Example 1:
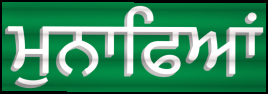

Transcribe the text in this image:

ਮੁਨਾਫਿਆਂ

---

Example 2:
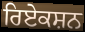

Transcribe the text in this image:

ਰਿਏਕਸ਼ਨ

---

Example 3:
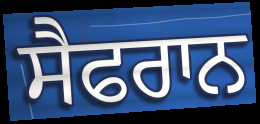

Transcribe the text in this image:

ਸੈਫਰਾਨ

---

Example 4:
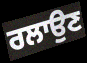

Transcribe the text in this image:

ਰਲਾਉਣ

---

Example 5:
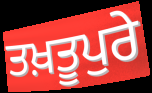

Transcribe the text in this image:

ਤਖ਼ਤੂਪੁਰੇ